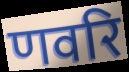
णवरि